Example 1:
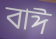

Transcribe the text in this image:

বাঈ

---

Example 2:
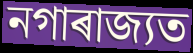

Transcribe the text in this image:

নগাৰাজ্যত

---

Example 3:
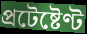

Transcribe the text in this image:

প্ৰটেষ্টেণ্ট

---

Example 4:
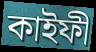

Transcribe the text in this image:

কাইফী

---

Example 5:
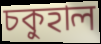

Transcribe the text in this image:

চকুহাল